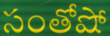
సంతోషో